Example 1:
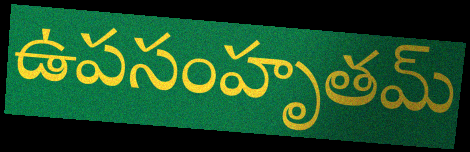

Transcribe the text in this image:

ఉపసంహృతమ్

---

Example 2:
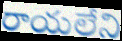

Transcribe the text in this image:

రాయలేని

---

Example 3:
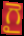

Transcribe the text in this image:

గై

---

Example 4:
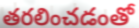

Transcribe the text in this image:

తరలించడంతో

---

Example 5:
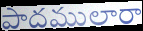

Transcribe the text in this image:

పాదములారా